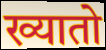
ख्यातो